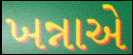
ખન્નાએ